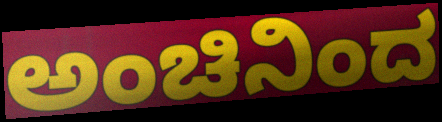
ಅಂಚಿನಿಂದ